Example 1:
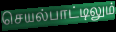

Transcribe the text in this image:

செயல்பாட்டிலும்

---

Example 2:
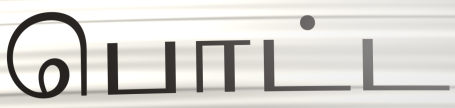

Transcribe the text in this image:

பொட்ட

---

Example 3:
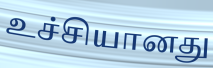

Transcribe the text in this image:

உச்சியானது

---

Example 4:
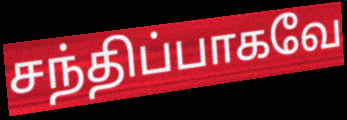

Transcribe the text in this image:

சந்திப்பாகவே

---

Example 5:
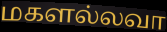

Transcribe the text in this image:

மகளல்லவா